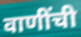
वाणींची